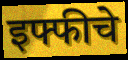
इफ्फीचे